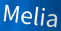
Melia